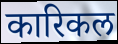
कारिकल